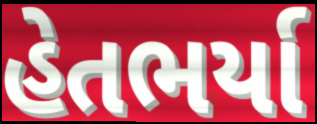
હેતભર્યા